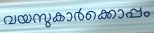
വയസുകാർക്കൊപ്പം